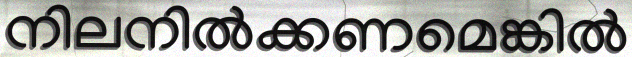
നിലനിൽക്കണമെങ്കിൽ